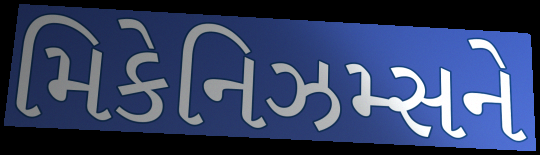
મિકેનિઝમ્સને